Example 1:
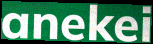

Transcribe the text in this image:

anekei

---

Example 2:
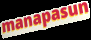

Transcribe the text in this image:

manapasun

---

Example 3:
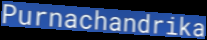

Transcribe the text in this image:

Purnachandrika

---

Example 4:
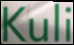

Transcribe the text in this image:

Kuli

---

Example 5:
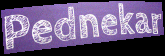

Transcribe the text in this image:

Pednekar